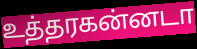
உத்தரகன்னடா